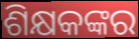
ଶିକ୍ଷକଙ୍କର